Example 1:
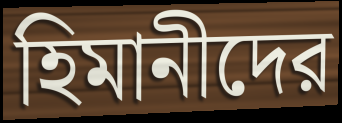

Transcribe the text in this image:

হিমানীদের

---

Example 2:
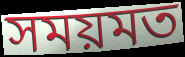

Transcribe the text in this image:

সময়মত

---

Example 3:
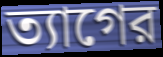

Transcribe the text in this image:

ত্যাগের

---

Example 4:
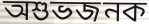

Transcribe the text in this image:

অশুভজনক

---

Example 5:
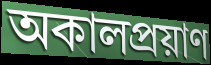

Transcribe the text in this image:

অকালপ্রয়াণ